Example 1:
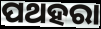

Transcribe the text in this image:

ପଥହରା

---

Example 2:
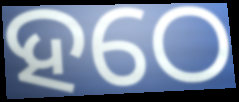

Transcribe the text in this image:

ହଠେ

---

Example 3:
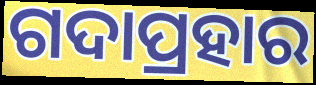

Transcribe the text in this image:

ଗଦାପ୍ରହାର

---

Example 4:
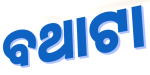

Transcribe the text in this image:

ବଥାଟା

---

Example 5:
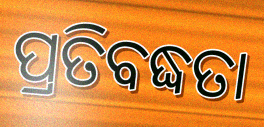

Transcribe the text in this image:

ପ୍ରତିବଦ୍ଧତା